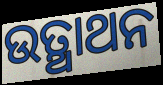
ଉତ୍ଥାଥନ